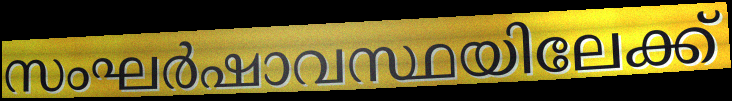
സംഘർഷാവസ്ഥയിലേക്ക്